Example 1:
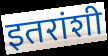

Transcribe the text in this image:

इतरांशी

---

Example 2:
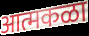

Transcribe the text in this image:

आत्मकळा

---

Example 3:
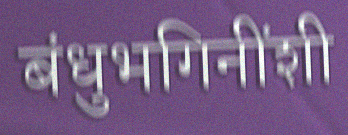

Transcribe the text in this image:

बंधुभगिनींशी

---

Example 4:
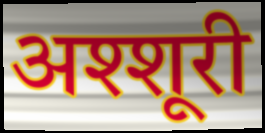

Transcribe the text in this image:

अश्‍शूरी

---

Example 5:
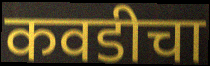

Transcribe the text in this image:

कवडीचा